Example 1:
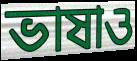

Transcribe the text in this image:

ভাষাও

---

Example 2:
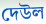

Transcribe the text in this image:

দেউল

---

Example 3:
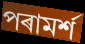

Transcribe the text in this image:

পৰামৰ্শ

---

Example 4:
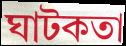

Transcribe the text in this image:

ঘাটকতা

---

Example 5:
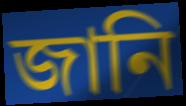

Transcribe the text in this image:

জানি